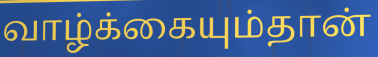
வாழ்க்கையும்தான்